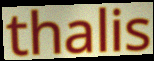
thalis